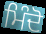
ਮਿੰਦੋ